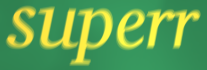
superr